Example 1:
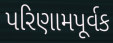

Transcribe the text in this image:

પરિણામપૂર્વક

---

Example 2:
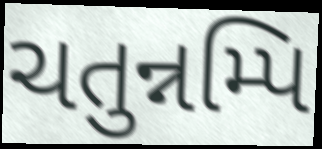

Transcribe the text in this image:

ચતુન્નમ્પિ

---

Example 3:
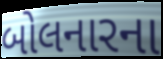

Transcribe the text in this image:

બોલનારના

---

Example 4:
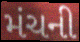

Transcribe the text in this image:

મંચની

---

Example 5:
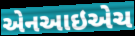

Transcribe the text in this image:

એનઆઇએચ